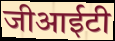
जीआईटी